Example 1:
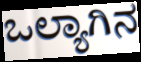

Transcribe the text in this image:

ಒಲ್ಯಾಗಿನ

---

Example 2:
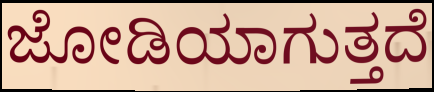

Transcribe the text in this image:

ಜೋಡಿಯಾಗುತ್ತದೆ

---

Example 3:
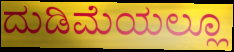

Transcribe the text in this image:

ದುಡಿಮೆಯಲ್ಲೂ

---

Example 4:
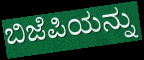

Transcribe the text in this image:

ಬಿಜೆಪಿಯನ್ನು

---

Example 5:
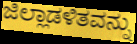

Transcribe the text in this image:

ಜಿಲ್ಲಾಡಳಿತವನ್ನು